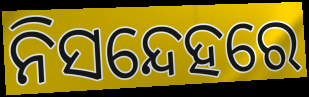
ନିସନ୍ଦେହରେ